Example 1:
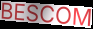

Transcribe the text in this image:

BESCOM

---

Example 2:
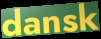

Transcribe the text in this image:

dansk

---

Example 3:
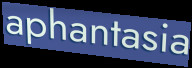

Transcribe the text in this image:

aphantasia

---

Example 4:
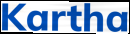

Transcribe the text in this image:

Kartha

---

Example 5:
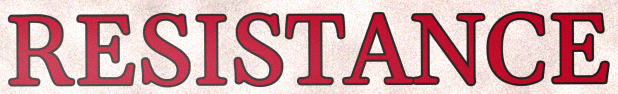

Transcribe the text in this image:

RESISTANCE